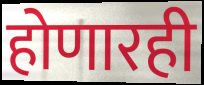
होणारही